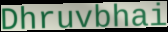
Dhruvbhai